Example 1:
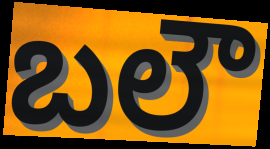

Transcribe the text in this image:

బలౌ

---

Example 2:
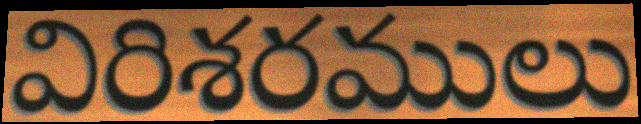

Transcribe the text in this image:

విరిశరములు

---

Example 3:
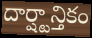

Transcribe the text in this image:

దార్ష్టాన్తికం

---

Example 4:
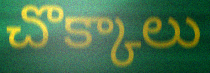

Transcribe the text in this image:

చొక్కాలు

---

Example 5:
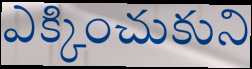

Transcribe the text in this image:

ఎక్కించుకుని